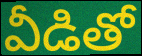
వీడితో